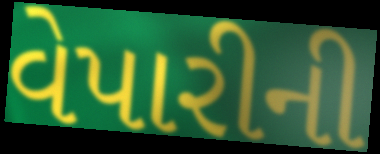
વેપારીની